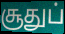
சூதுப்